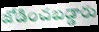
జోడించబడ్డారు